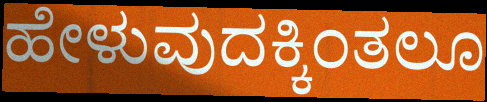
ಹೇಳುವುದಕ್ಕಿಂತಲೂ